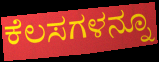
ಕೆಲಸಗಳನ್ನೂ